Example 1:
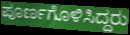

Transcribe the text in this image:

ಪೂರ್ಣಗೊಳಿಸಿದ್ದರು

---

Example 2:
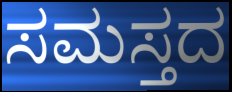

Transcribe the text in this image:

ಸಮಸ್ತದ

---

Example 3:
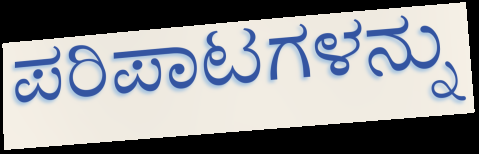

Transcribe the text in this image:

ಪರಿಪಾಟಗಳನ್ನು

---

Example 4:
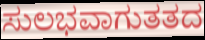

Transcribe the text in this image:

ಸುಲಭವಾಗುತತದ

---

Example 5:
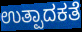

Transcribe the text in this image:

ಉತ್ಪಾದಕತೆ